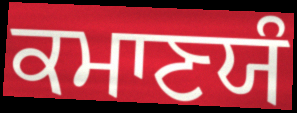
ਕਮਾਣਯੰ